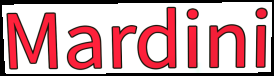
Mardini